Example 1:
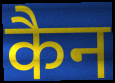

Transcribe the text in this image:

कैन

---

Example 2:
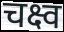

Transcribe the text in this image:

चक्ष्व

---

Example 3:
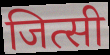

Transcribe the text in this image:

जित्सी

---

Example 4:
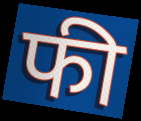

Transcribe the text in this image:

फी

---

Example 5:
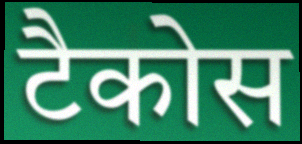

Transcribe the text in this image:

टैकोस